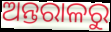
ଅନ୍ତରାଳରୁ